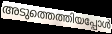
അടുത്തെത്തിയപ്പോൾ